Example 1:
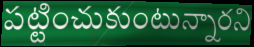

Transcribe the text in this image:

పట్టించుకుంటున్నారని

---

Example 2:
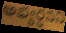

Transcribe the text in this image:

అభ్యర్ధనని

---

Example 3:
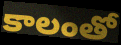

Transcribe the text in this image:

కాలంతో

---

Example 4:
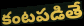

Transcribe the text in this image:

కంటపడితే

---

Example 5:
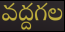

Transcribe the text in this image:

వద్దగల